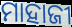
ମାହାଜୀ